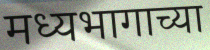
मध्यभागाच्या